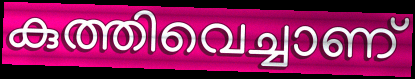
കുത്തിവെച്ചാണ്